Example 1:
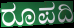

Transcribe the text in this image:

ರೂಪದಿ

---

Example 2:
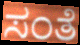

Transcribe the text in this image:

ಸಂತೆ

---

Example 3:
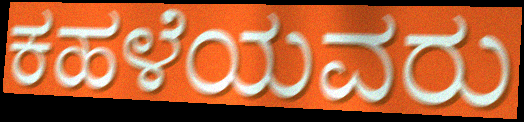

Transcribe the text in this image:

ಕಹಳೆಯವರು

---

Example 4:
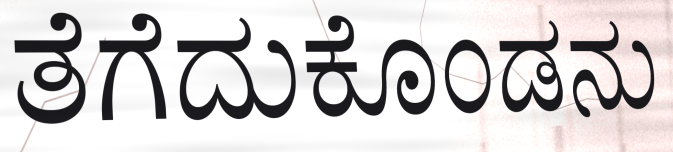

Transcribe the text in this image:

ತೆಗೆದುಕೊಂಡನು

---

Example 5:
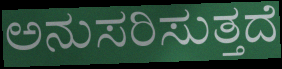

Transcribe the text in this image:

ಅನುಸರಿಸುತ್ತದೆ